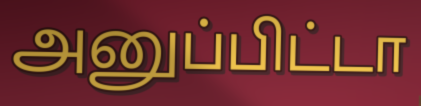
அனுப்பிட்டா